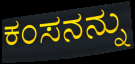
ಕಂಸನನ್ನು